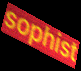
sophist